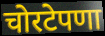
चोरटेपणा